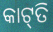
କାଟ୍‍ତି